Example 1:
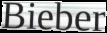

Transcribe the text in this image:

Bieber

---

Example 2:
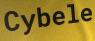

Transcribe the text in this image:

Cybele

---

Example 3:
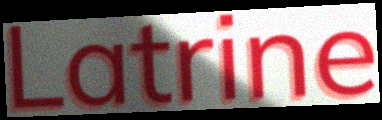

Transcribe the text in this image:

Latrine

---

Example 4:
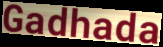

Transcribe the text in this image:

Gadhada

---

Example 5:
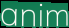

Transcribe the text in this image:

anim